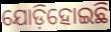
ଯୋଡ଼ିହୋଇଛି